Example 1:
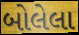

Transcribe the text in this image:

બોલેલા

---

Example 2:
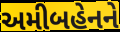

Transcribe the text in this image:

અમીબહેનને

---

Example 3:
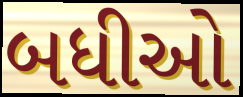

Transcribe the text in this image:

બધીઓ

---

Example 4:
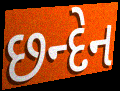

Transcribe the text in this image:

છન્દેન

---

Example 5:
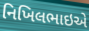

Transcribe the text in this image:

નિખિલભાઇએ